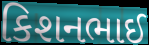
કિશનભાઈ